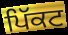
ਪਿੱਕਟ